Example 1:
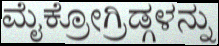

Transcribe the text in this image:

ಮೈಕ್ರೋಗ್ರಿಡ್ಗಳನ್ನು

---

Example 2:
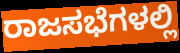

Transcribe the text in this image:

ರಾಜಸಭೆಗಳಲ್ಲಿ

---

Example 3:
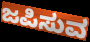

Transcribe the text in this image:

ಜಪಿಸುವ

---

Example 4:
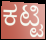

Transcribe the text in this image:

ಕಟ್ಟಿ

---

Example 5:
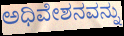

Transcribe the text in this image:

ಅಧಿವೇಶನವನ್ನು